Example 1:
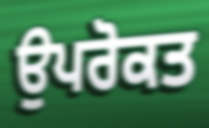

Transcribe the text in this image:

ਉਪਰੋਕਤ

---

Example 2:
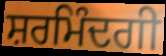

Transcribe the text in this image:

ਸ਼ਰਮਿੰਦਗੀ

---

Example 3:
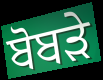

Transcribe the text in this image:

ਬੋਬੜੇ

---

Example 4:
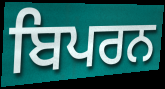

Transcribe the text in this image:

ਬਿਪਰਨ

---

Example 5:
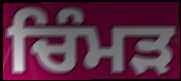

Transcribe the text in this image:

ਚਿੰਮੜ